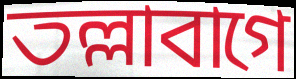
তল্লাবাগে